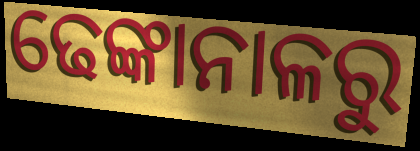
ଢେଙ୍କାନାଳରୁ